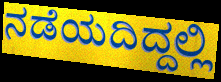
ನಡೆಯದಿದ್ದಲ್ಲಿ